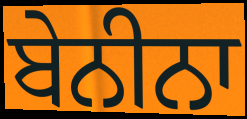
ਬੇਨੀਨਾ